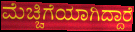
ಮೆಚ್ಚಿಗೆಯಾಗಿದ್ದಾರೆ